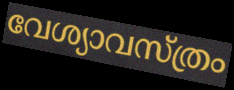
വേശ്യാവസ്ത്രം